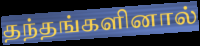
தந்தங்களினால்